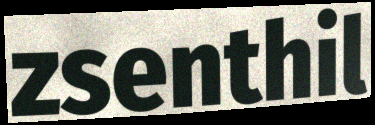
zsenthil